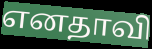
எனதாவி